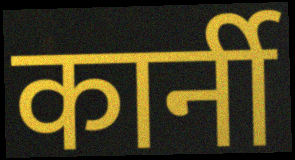
कार्नी